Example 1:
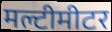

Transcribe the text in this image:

मल्टीमीटर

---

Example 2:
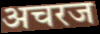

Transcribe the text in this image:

अचरज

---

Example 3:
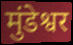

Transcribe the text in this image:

मुंडेश्वर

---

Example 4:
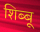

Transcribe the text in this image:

शिब्बू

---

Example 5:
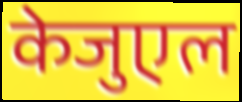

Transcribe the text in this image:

केजुएल